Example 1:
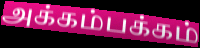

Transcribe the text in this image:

அக்கம்பக்கம்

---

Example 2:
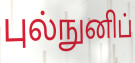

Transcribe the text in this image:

புல்நுனிப்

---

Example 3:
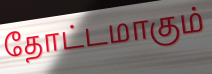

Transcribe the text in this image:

தோட்டமாகும்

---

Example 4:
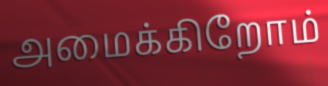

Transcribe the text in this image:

அமைக்கிறோம்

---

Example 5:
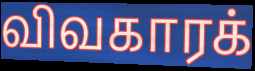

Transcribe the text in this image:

விவகாரக்